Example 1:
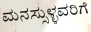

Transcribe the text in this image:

ಮನಸ್ಸುಳ್ಳವರಿಗೆ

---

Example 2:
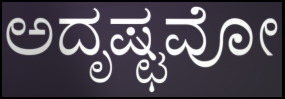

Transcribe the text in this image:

ಅದೃಷ್ಟವೋ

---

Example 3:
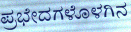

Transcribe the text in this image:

ಪ್ರಭೇದಗಳೊಳಗಿನ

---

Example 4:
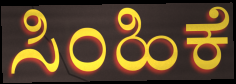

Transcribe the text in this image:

ಸಿಂಹಿಕೆ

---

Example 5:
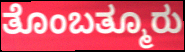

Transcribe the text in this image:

ತೊಂಬತ್ಮೂರು